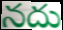
నదు